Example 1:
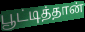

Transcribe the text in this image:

பூட்டித்தான்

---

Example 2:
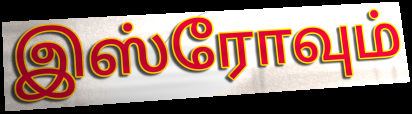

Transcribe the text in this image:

இஸ்ரோவும்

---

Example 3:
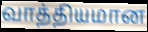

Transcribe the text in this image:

வாத்தியமான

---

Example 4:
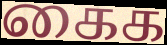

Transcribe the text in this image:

கைக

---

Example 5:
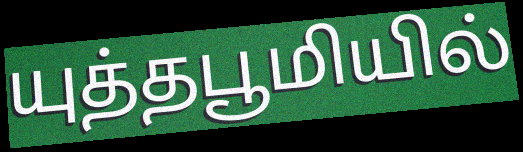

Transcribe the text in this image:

யுத்தபூமியில்